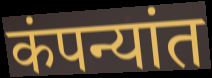
कंपन्यांत